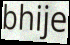
bhije